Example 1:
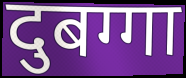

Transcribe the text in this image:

दुबग्गा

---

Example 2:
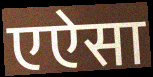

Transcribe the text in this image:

एऐसा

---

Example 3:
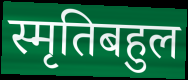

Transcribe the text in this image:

स्मृतिबहुल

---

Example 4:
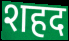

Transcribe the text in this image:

शहद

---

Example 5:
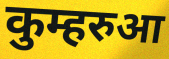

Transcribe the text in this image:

कुम्हरुआ